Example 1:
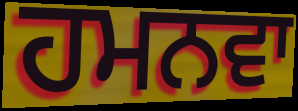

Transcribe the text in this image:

ਹਮਨਵਾ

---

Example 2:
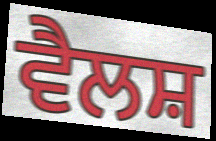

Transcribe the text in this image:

ਵੈਲਸ਼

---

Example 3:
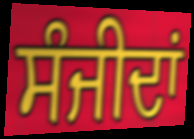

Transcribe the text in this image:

ਸੰਜੀਦਾਂ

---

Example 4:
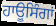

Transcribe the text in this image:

ਹਾਊਸਿੰਗਾਂ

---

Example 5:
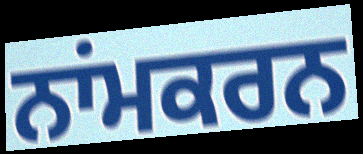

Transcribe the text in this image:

ਨਾਂਮਕਰਨ